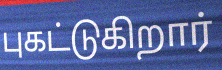
புகட்டுகிறார்